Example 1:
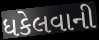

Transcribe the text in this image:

ધકેલવાની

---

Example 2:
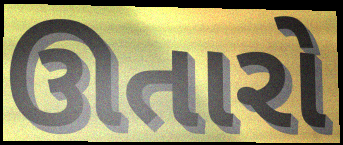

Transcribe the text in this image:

ઊતારો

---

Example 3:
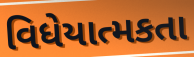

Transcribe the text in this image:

વિધેયાત્મકતા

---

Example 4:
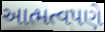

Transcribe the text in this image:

આત્મત્વપણે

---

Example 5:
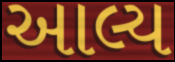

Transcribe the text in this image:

આલ્ય